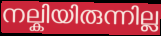
നല്കിയിരുന്നില്ല